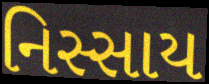
નિસ્સાય